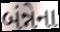
બંન્નેના